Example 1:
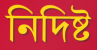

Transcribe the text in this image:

নিদিষ্ট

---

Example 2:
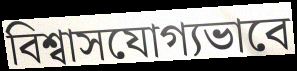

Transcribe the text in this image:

বিশ্বাসযোগ্যভাবে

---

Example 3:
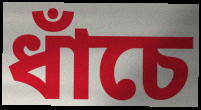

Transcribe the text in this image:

ধাঁচে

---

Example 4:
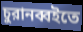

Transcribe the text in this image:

চুরানব্বইতে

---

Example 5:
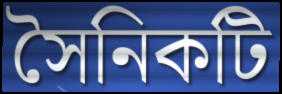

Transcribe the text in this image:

সৈনিকটি